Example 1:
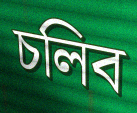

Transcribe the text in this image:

চলিব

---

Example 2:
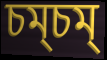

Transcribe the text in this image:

চম্চম্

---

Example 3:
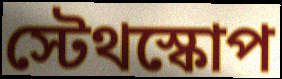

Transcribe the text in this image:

স্টেথস্কোপ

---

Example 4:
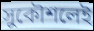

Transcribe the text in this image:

সুকৌশলেই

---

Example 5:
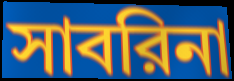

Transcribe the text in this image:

সাবরিনা